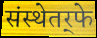
संस्थेतर्फे